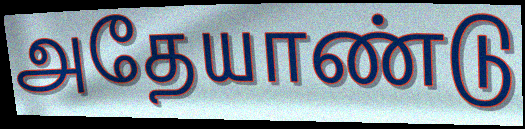
அதேயாண்டு